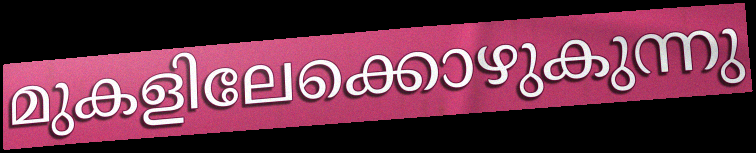
മുകളിലേക്കൊഴുകുന്നു